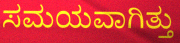
ಸಮಯವಾಗಿತ್ತು